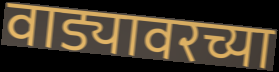
वाड्यावरच्या